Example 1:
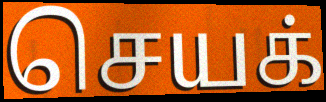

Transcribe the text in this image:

செயக்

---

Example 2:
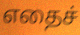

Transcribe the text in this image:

எதைச்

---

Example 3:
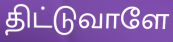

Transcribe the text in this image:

திட்டுவாளே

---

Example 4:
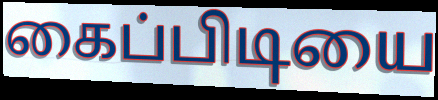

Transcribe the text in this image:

கைப்பிடியை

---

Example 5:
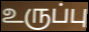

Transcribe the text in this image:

உருப்பு